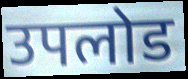
उपलोड